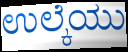
ಉಲ್ಕೆಯು